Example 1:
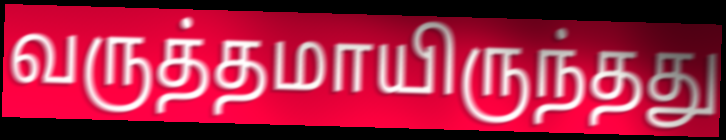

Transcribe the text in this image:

வருத்தமாயிருந்தது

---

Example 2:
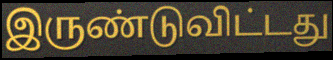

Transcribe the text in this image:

இருண்டுவிட்டது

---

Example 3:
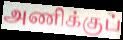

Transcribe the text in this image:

அணிக்குப்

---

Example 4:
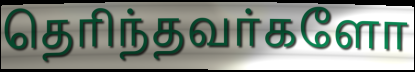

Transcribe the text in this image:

தெரிந்தவர்களோ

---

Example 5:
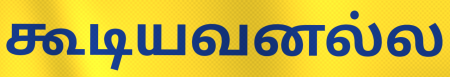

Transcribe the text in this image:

கூடியவனல்ல